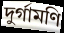
দুর্গামণি